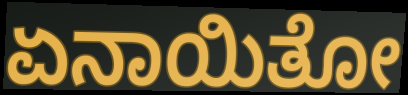
ಏನಾಯಿತೋ